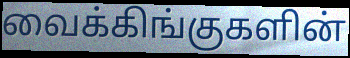
வைக்கிங்குகளின்